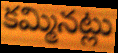
కమ్మినట్లు